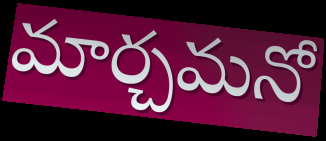
మార్చమనో